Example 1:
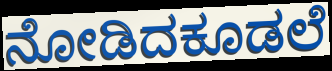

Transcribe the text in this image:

ನೋಡಿದಕೂಡಲೆ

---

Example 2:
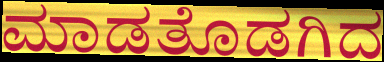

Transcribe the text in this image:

ಮಾಡತೊಡಗಿದ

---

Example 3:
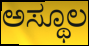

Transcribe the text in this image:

ಅಸ್ಥೂಲ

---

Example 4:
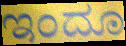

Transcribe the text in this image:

ಇಂದೂ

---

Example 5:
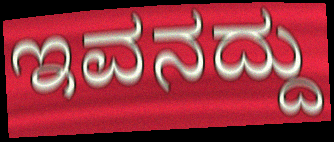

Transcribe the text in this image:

ಇವನದ್ದು